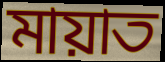
মায়াত